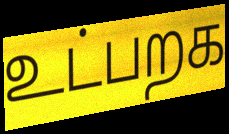
உட்பறக